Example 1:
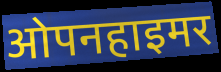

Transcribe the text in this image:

ओपनहाइमर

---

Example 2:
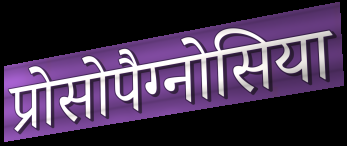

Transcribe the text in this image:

प्रोसोपैग्नोसिया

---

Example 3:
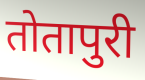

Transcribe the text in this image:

तोतापुरी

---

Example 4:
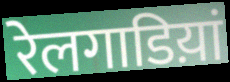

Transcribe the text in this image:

रेलगाडिय़ां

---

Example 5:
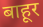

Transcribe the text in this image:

बाहूर